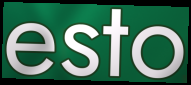
esto